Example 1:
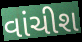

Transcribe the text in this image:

વાંચીશ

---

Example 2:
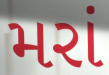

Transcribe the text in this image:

મરાં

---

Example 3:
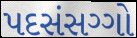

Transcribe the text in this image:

પદસંસગ્ગો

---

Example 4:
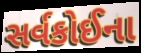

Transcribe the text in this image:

સર્વકોઈના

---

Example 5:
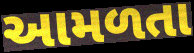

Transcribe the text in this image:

આમળતા